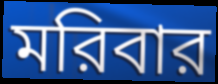
মরিবার